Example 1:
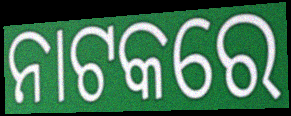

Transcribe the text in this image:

ନାଟକରେ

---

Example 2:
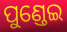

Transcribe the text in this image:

ପୁଣ୍ଡେଇ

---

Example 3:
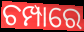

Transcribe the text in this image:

ଚମ୍ପାରେ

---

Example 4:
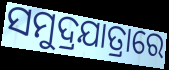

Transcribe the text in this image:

ସମୁଦ୍ରଯାତ୍ରାରେ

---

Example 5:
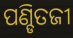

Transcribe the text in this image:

ପଣ୍ଡିତଜୀ